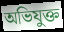
অভিযুক্ত